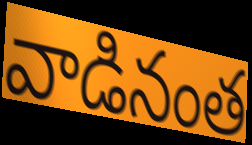
వాడినంత